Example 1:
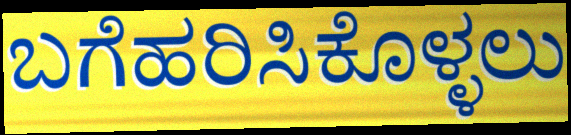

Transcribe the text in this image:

ಬಗೆಹರಿಸಿಕೊಳ್ಳಲು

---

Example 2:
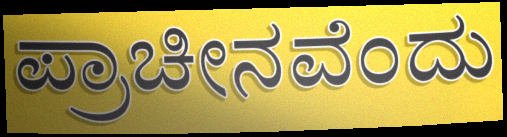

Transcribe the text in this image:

ಪ್ರಾಚೀನವೆಂದು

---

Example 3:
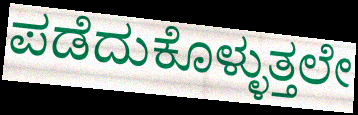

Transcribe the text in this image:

ಪಡೆದುಕೊಳ್ಳುತ್ತಲೇ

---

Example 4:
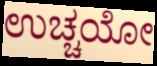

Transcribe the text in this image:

ಉಚ್ಚಯೋ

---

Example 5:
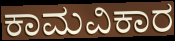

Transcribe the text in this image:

ಕಾಮವಿಕಾರ